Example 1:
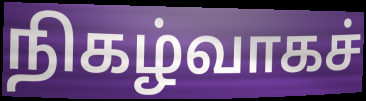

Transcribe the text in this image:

நிகழ்வாகச்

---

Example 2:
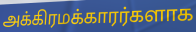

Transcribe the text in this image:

அக்கிரமக்காரர்களாக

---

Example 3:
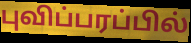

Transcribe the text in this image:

புவிப்பரப்பில்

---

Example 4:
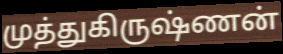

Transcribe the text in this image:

முத்துகிருஷ்ணன்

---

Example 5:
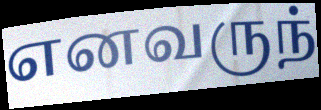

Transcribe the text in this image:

எனவருந்